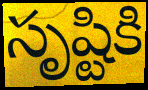
సృష్టికి